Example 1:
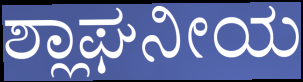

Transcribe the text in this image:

ಶ್ಲಾಘನೀಯ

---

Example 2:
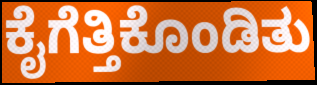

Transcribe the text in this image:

ಕೈಗೆತ್ತಿಕೊಂಡಿತು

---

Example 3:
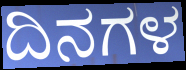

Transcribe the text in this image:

ದಿನಗಳ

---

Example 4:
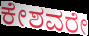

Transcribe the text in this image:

ಕೇಶವರೇ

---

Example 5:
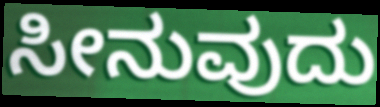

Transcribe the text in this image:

ಸೀನುವುದು